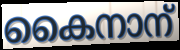
കൈനാന്